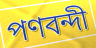
পণবন্দী